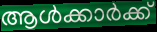
ആൾക്കാർക്ക്